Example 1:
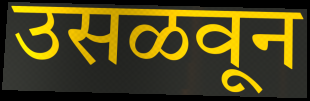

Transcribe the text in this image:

उसळवून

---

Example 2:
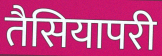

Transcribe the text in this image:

तैसियापरी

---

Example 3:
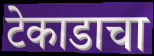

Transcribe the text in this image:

टेकाडाचा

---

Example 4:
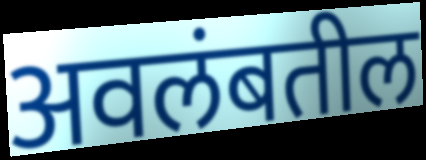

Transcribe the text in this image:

अवलंबतील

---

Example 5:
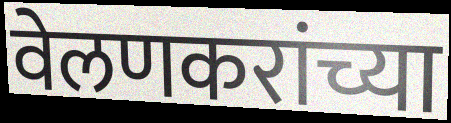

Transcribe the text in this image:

वेलणकरांच्या